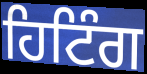
ਹਿਟਿੰਗ